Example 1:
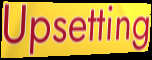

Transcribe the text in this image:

Upsetting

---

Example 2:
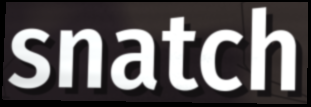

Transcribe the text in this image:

snatch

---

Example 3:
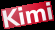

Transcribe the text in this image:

Kimi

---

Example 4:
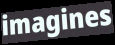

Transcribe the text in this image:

imagines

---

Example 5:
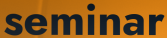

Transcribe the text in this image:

seminar